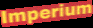
Imperium